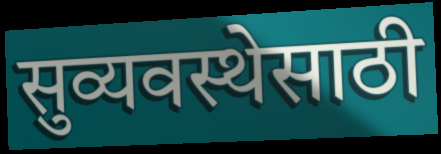
सुव्यवस्थेसाठी